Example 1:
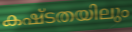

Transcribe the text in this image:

കഷ്ടതയിലും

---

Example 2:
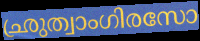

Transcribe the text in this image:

ഛ്രുത്വാംഗിരസോ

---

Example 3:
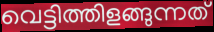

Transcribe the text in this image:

വെട്ടിത്തിളങ്ങുന്നത്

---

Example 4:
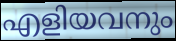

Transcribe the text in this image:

എളിയവനും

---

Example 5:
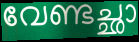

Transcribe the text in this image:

വേണ്ടച്ഛാ